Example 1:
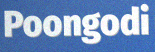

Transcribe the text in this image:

Poongodi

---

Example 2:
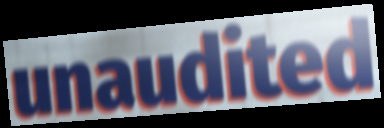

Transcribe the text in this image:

unaudited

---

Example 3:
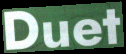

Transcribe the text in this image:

Duet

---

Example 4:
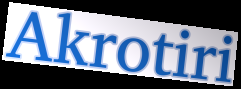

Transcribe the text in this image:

Akrotiri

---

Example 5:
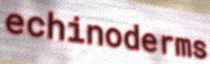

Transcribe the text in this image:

echinoderms